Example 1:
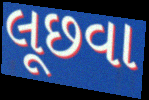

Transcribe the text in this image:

લૂછવા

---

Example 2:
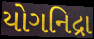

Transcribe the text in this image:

યોગનિદ્રા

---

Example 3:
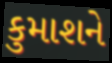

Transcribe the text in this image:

કુમાશને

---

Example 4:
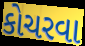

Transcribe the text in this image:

કોચરવા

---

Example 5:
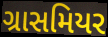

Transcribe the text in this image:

ગ્રાસમિયર